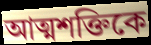
আত্মশক্তিকে